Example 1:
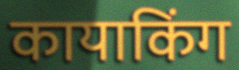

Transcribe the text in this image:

कायाकिंग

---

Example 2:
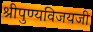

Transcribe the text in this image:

श्रीपुण्यविजयजी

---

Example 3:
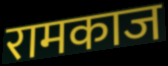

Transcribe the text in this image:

रामकाज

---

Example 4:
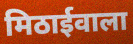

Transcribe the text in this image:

मिठाईवाला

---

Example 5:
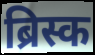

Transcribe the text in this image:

ब्रिस्क